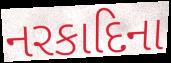
નરકાદિના